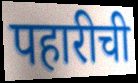
पहारीची